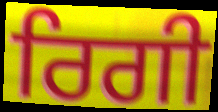
ਰਿਗੀ